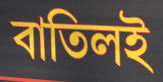
বাতিলই